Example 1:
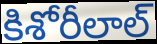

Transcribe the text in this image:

కిశోరీలాల్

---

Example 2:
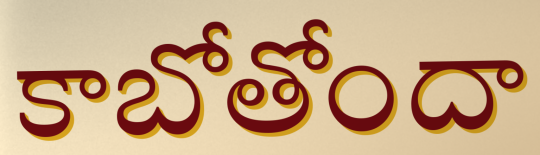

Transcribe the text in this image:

కాబోతోందా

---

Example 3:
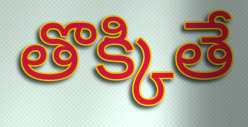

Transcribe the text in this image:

తొక్కితే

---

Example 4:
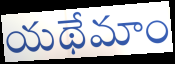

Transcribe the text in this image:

యథేమాం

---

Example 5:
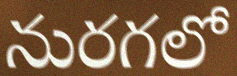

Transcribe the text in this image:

నురగలో